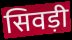
सिवड़ी